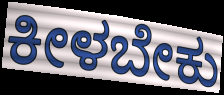
ಕೀಳಬೇಕು